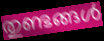
തുണ്ടങ്ങൾ